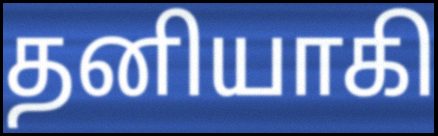
தனியாகி